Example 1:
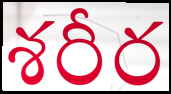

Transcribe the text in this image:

శరీర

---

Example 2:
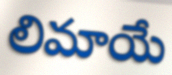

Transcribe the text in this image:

లిమాయే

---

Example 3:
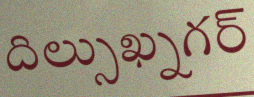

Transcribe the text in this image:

దిల్సుఖ్నగర్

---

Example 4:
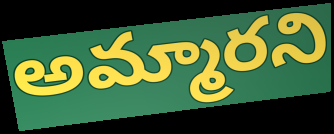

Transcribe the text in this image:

అమ్మారని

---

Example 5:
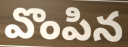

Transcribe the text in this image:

వొంపిన